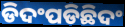
ଡିଦଂପଡିଛିଦଂ